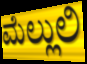
ಮೆಲ್ಲುಲಿ